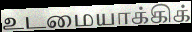
உடமையாக்கிக்